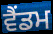
ਵੈਂਡਮ